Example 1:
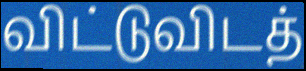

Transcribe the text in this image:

விட்டுவிடத்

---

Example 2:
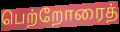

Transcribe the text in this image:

பெற்றோரைத்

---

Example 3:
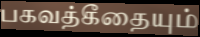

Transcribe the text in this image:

பகவத்கீதையும்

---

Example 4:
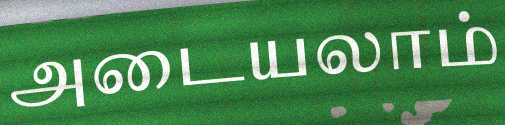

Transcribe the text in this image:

அடையலாம்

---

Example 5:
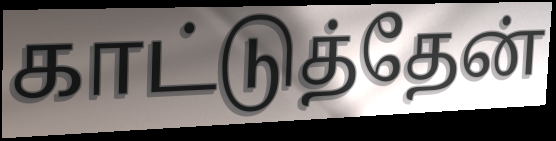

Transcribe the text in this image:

காட்டுத்தேன்